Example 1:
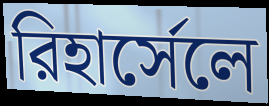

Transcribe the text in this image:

রিহার্সেলে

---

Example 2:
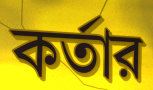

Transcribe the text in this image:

কর্তার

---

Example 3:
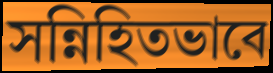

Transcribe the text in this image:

সন্নিহিতভাবে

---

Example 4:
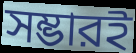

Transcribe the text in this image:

সম্ভারই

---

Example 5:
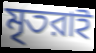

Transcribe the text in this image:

মৃতরাই